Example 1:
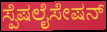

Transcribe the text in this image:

ಸ್ಪೆಷಲೈಸೇಷನ್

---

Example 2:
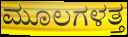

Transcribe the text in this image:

ಮೂಲಗಳತ್ತ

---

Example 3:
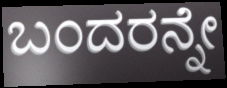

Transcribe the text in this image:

ಬಂದರನ್ನೇ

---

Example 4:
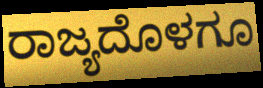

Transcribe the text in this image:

ರಾಜ್ಯದೊಳಗೂ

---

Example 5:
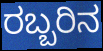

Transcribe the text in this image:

ರಬ್ಬರಿನ